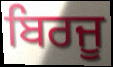
ਬਿਰਜੂ